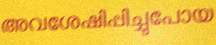
അവശേഷിപ്പിച്ചുപോയ